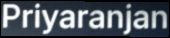
Priyaranjan